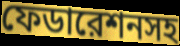
ফেডারেশনসহ